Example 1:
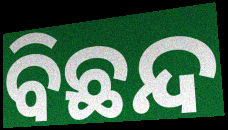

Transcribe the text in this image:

ବିଛନ୍ଦ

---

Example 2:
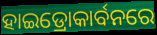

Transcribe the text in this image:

ହାଇଡ୍ରୋକାର୍ବନରେ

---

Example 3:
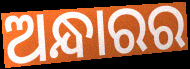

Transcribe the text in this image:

ଅନ୍ଧାରର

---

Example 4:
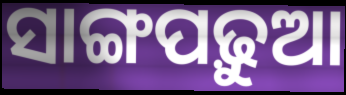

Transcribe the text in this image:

ସାଙ୍ଗପଢ଼ୁଆ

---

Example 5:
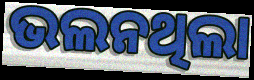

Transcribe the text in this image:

ଭଲନଥିଲା